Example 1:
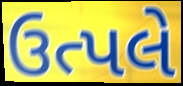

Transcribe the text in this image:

ઉત્પલે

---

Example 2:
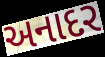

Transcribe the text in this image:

અનાદર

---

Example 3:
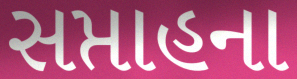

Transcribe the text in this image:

સપ્તાહના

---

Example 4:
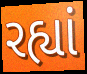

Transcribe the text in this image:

રહ્યાં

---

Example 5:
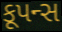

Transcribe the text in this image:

કૂપન્સ